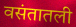
वसंतातली